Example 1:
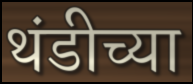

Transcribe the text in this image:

थंडीच्या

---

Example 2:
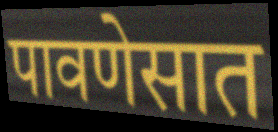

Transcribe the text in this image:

पावणेसात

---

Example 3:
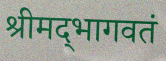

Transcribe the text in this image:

श्रीमद्‌भागवतं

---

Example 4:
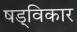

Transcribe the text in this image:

षड्‌विकार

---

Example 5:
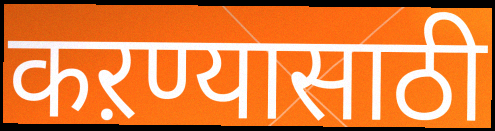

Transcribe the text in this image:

कऱण्यासाठी